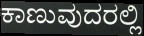
ಕಾಣುವುದರಲ್ಲಿ